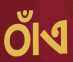
ଠାଁଏ